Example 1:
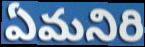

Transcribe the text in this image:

ఏమనిరి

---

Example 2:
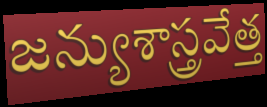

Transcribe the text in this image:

జన్యుశాస్త్రవేత్త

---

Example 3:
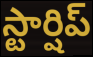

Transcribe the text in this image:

స్టార్షిప్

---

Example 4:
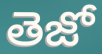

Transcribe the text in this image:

తెజో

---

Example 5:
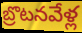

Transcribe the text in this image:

బ్రొటనవేళ్ల